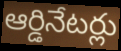
ఆర్డినేటర్లు